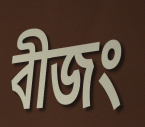
বীজং